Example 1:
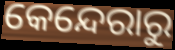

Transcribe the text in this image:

କେନ୍ଦେରାରୁ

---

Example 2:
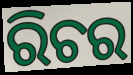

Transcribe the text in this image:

ରିଚର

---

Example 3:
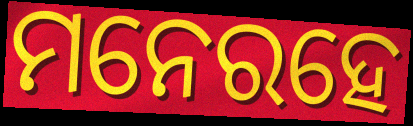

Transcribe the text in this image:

ମନେରହେ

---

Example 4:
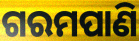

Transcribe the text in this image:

ଗରମପାଣି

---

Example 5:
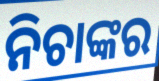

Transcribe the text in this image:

ନିଚାଙ୍କର